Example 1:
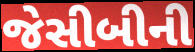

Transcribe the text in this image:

જેસીબીની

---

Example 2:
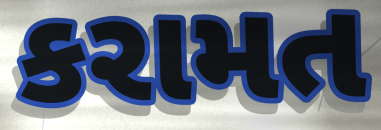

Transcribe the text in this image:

કરામત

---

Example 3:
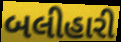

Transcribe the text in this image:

બલીહારી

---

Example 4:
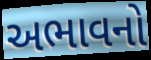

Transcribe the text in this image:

અભાવનો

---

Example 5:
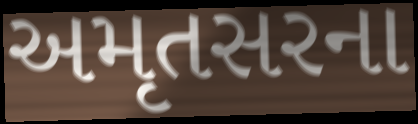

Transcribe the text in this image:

અમૃતસરના